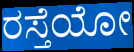
ರಸ್ತೆಯೋ